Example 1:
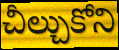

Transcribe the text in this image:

చీల్చుకోని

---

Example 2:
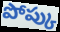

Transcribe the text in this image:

పోప్కు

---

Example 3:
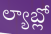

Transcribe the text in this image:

ల్యాబ్లో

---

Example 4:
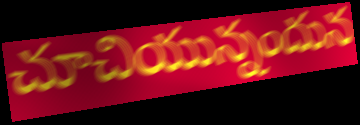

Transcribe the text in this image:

చూచియున్నందున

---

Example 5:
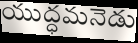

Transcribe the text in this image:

యుద్ధమనెడు